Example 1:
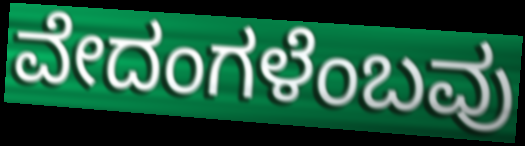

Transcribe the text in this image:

ವೇದಂಗಳೆಂಬವು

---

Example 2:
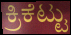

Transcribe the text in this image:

ಕ್ರಿಕೆಟ್ಟು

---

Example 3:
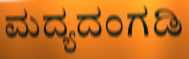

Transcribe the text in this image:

ಮದ್ಯದಂಗಡಿ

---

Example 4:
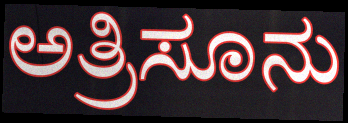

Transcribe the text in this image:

ಅತ್ರಿಸೂನು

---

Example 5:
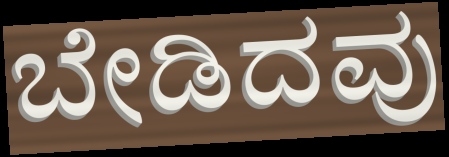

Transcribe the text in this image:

ಬೇಡಿದವು